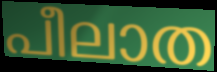
പീലാത